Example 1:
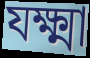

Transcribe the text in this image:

যক্ষ্মা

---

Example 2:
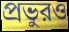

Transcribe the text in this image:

প্রভুরও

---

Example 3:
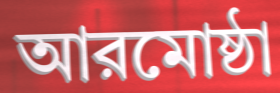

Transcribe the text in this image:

আরমোষ্ঠা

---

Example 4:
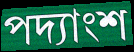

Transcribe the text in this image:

পদ্যাংশ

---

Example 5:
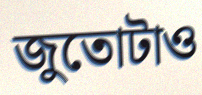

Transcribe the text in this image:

জুতোটাও